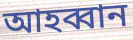
আহব্বান